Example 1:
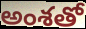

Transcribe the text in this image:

అంశతో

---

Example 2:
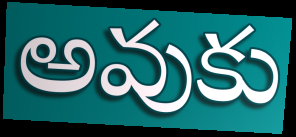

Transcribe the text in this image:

అవుకు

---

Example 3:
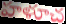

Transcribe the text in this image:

హళూచ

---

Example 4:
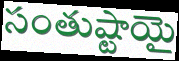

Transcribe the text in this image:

సంతుష్టాయై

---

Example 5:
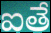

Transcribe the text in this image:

ఐతే